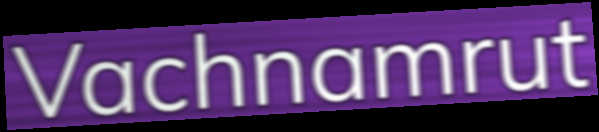
Vachnamrut